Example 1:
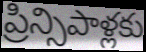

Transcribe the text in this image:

ప్రిన్సిపాళ్లకు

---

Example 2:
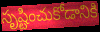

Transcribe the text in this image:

సృష్టించుకోడానికి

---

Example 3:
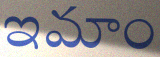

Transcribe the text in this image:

ఇమాం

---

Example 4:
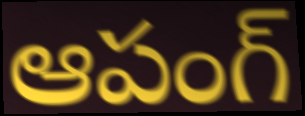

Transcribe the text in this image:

ఆపంగ్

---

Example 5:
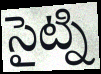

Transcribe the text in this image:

సైట్ని